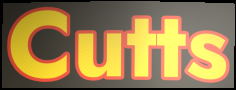
Cutts